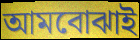
আমবোঝাই